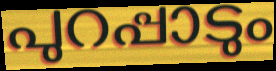
പുറപ്പാടും